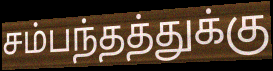
சம்பந்தத்துக்கு